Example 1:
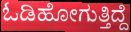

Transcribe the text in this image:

ಓಡಿಹೋಗುತ್ತಿದ್ದೆ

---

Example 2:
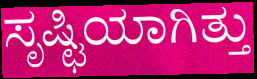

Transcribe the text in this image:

ಸೃಷ್ಟಿಯಾಗಿತ್ತು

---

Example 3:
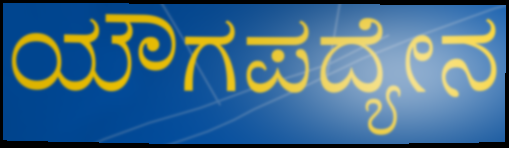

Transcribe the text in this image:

ಯೌಗಪದ್ಯೇನ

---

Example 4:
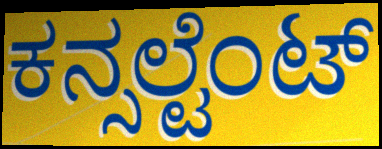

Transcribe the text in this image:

ಕನ್ಸಲ್ಟೆಂಟ್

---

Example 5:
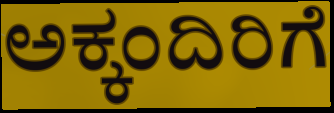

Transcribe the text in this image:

ಅಕ್ಕಂದಿರಿಗೆ